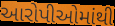
આરોપીઓમાંથી